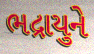
ભદ્રાયુને